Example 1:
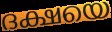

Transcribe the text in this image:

ദക്ഷയെ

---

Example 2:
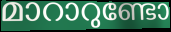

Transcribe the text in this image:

മാറാറുണ്ടോ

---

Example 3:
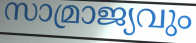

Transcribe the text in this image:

സാമ്രാജ്യവും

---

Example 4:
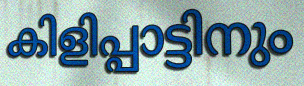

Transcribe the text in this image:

കിളിപ്പാട്ടിനും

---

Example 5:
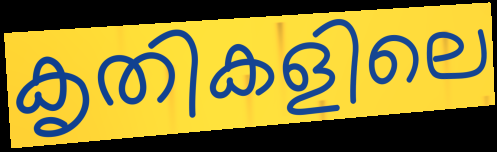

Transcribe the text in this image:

കൃതികളിലെ